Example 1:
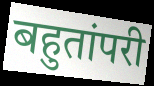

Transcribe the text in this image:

बहुतांपरी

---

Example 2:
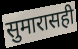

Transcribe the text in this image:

सुमारासही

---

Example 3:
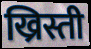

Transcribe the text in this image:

ख्रिस्ती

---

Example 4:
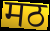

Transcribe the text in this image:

मठ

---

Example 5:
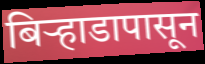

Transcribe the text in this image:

बिऱ्हाडापासून